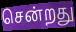
சென்றது